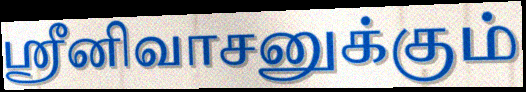
ஸ்ரீனிவாசனுக்கும்